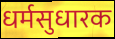
धर्मसुधारक